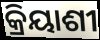
କ୍ରିୟାଶୀ